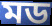
মড